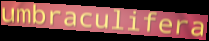
umbraculifera